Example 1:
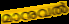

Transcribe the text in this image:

മാനുവൽ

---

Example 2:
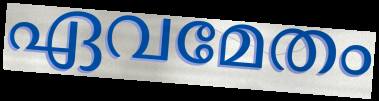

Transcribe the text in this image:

ഏവമേതം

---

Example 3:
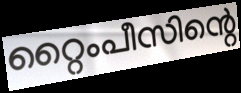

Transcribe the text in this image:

റ്റൈംപീസിന്റെ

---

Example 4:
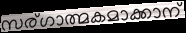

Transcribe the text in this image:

സര്ഗാത്മകമാക്കാന്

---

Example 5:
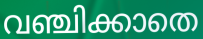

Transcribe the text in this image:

വഞ്ചിക്കാതെ